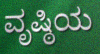
ವೃಷ್ಠಿಯ